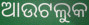
ଆଉଟଲୁକ